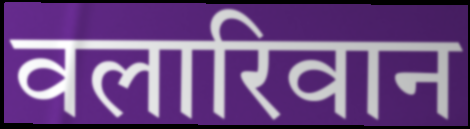
वलारिवान